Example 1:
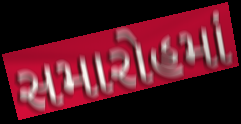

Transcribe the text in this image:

સમારોહમાં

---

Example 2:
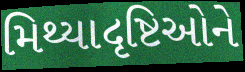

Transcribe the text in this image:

મિથ્યાદૃષ્ટિઓને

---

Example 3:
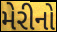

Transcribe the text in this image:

મેરીનો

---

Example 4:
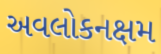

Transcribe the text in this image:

અવલોકનક્ષમ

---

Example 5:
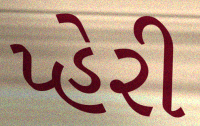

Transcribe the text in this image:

પ્હેરી